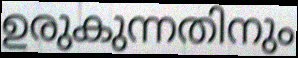
ഉരുകുന്നതിനും